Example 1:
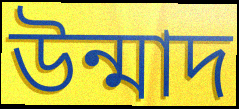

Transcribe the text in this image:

উন্মাদ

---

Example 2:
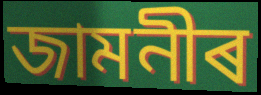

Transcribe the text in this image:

জামনীৰ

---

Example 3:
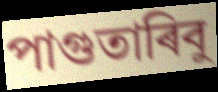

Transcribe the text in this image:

পাগুতাৰিবু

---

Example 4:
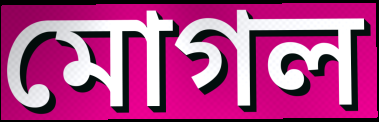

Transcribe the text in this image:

মোগল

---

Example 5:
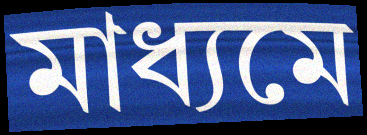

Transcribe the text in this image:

মাধ্যমে